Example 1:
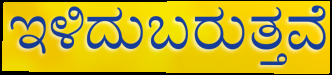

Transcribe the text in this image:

ಇಳಿದುಬರುತ್ತವೆ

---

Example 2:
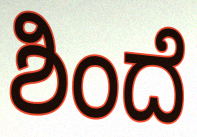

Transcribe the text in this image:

ಶಿಂದೆ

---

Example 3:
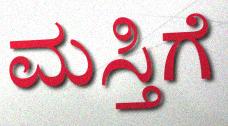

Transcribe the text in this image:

ಮಸ್ತಿಗೆ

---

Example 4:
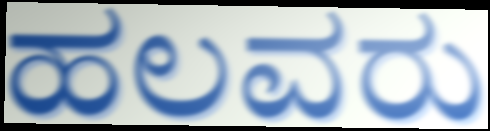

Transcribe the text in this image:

ಹಲವರು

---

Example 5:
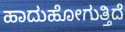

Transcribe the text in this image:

ಹಾದುಹೋಗುತ್ತಿದೆ